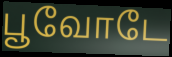
பூவோடே